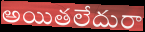
అయితలేదురా